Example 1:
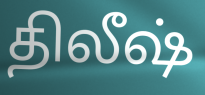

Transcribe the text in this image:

திலீஷ்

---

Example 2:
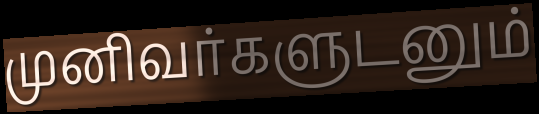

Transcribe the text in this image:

முனிவர்களுடனும்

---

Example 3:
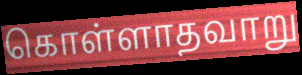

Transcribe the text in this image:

கொள்ளாதவாறு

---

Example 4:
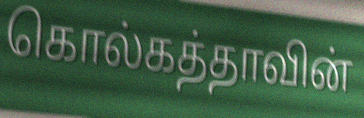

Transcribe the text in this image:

கொல்கத்தாவின்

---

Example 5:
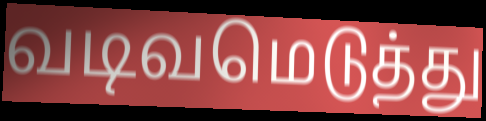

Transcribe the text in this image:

வடிவமெடுத்து